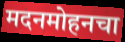
मदनमोहनचा